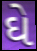
ઘે